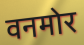
वनमोर